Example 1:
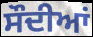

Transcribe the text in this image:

ਸੌਦੀਆਂ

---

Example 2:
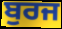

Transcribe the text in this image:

ਬੁਰਜ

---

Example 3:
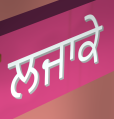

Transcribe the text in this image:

ਲਜਾਕੇ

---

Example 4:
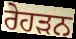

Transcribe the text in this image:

ਰੇਹੜਨ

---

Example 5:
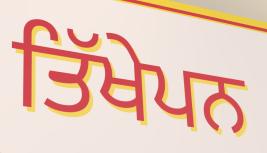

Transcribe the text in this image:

ਤਿੱਖੇਪਨ